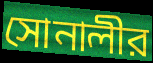
সোনালীর